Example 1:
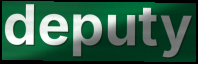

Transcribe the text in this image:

deputy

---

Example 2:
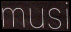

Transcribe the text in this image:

musi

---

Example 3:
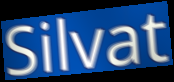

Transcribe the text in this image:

Silvat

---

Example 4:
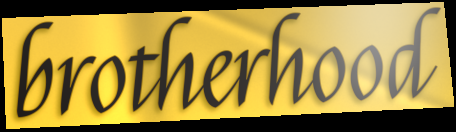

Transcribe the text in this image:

brotherhood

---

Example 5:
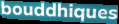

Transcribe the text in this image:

bouddhiques